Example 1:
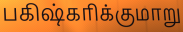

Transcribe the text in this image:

பகிஷ்கரிக்குமாறு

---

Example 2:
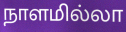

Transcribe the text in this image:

நாளமில்லா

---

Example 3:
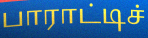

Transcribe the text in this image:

பாராட்டிச்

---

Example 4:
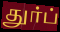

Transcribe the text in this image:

துர்ப்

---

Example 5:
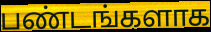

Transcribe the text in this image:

பண்டங்களாக